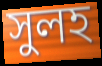
সুলহ